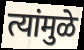
त्यांमुळे